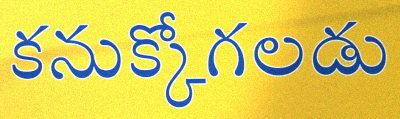
కనుక్కోగలడు